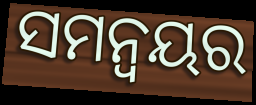
ସମନ୍ଵୟର